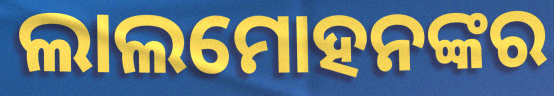
ଲାଲମୋହନଙ୍କର